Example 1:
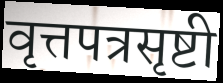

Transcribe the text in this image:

वृत्तपत्रसृष्टी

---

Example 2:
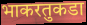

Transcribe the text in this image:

भाकरतुकडा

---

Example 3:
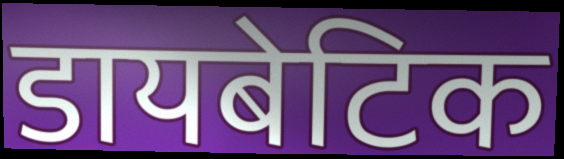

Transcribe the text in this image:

डायबेटिक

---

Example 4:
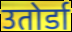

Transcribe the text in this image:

उतोर्डा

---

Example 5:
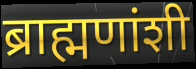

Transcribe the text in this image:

ब्राह्मणांशी